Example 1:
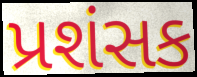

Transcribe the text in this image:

પ્રશંસક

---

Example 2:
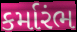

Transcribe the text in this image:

કર્મારંભ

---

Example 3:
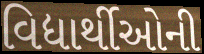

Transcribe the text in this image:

વિદ્યાર્થીઓની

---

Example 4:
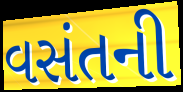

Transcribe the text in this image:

વસંતની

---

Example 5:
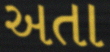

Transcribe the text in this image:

અતા